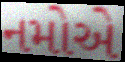
નમોએ